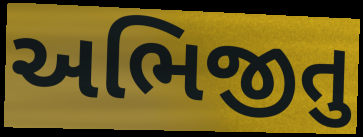
અભિજીતુ